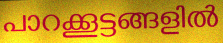
പാറക്കൂട്ടങ്ങളിൽ